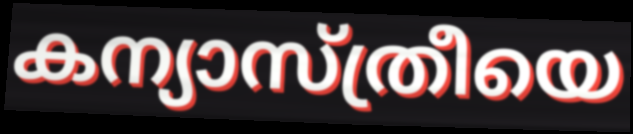
കന്യാസ്ത്രീയെ